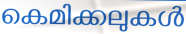
കെമിക്കലുകൾ